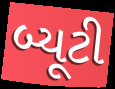
બ્યૂટી